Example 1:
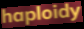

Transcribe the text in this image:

haploidy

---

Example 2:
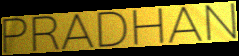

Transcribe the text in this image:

PRADHAN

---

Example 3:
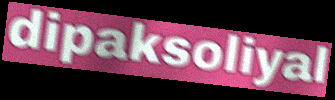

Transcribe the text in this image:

dipaksoliyal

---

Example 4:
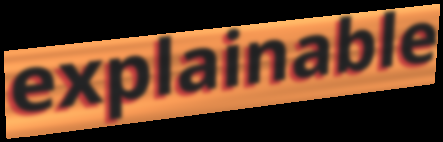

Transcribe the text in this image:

explainable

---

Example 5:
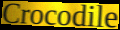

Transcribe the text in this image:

Crocodile